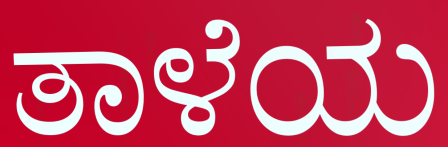
ತಾಳೆಯ